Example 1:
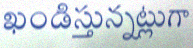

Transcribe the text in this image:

ఖండిస్తున్నట్లుగా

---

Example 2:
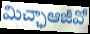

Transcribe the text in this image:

మిచ్ఛాఆజీవో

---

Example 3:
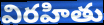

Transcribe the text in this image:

విరహితు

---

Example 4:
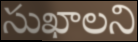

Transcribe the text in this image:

సుఖాలని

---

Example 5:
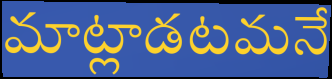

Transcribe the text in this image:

మాట్లాడటమనే